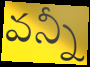
వన్నీ